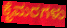
ಕೈಮರಗಳು